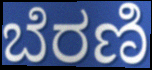
ಬೆರಣಿ